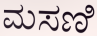
ಮಸಣಿ